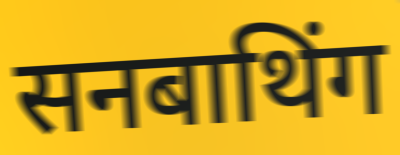
सनबाथिंग